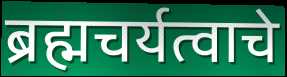
ब्रह्मचर्यत्वाचे